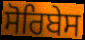
ਸੋਰਿਬੇਸ